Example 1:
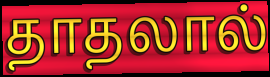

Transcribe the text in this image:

தாதலால்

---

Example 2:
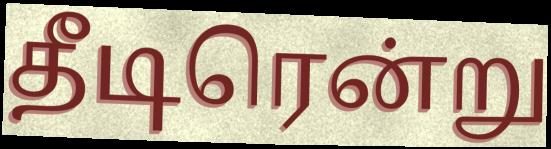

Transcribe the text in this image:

தீடிரென்று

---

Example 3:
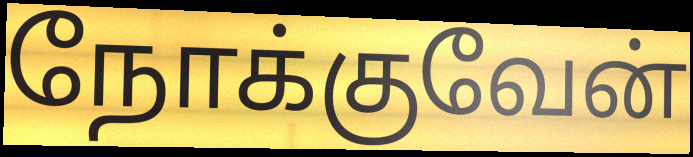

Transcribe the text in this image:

நோக்குவேன்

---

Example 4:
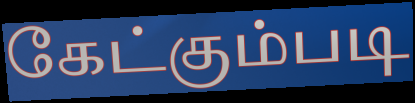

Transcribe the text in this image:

கேட்கும்படி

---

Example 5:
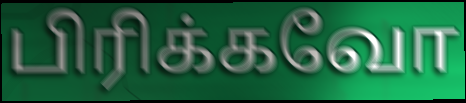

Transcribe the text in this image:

பிரிக்கவோ